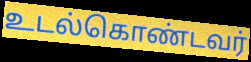
உடல்கொண்டவர்